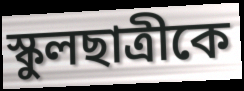
স্কুলছাত্রীকে